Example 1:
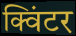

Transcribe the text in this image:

क्विंटर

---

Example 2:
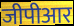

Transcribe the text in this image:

जीपीआर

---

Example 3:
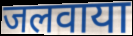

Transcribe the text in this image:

जलवाया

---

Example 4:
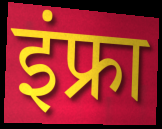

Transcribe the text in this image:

इंफ्रा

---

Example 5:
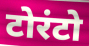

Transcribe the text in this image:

टोरंटो